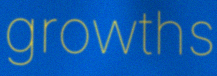
growths